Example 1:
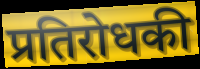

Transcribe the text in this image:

प्रतिरोधकी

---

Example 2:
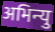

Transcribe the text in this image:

अभिन्यु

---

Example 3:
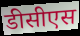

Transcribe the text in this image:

डीसीएस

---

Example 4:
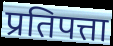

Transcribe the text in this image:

प्रतिपत्ता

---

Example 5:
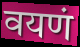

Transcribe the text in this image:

वयणं